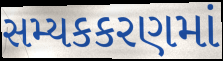
સમ્યકકરણમાં